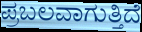
ಪ್ರಬಲವಾಗುತ್ತಿದೆ